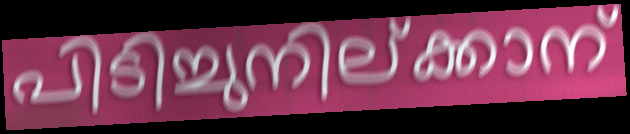
പിടിച്ചുനില്ക്കാന്